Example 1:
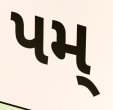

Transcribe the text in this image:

પમ્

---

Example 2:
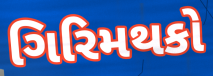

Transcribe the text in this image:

ગિરિમથકો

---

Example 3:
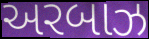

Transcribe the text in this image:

અરબાઝ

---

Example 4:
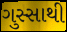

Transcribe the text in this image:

ગુસ્સાથી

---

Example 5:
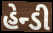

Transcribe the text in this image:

હેન્ડી